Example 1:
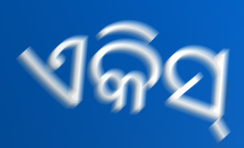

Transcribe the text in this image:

ଏକିସ୍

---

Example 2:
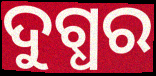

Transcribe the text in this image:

ଦୁଗ୍ଧର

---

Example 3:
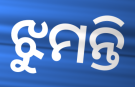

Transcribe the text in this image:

ଝୁମନ୍ତି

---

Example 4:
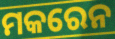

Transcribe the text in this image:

ମକରେନ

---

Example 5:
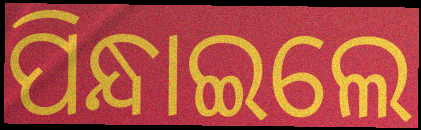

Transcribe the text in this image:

ପିନ୍ଧାଇଲେ